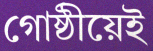
গোষ্ঠীয়েই